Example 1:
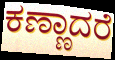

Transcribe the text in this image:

ಕಣ್ಣಾದರೆ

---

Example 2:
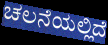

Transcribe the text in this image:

ಚಲನೆಯಲ್ಲಿದೆ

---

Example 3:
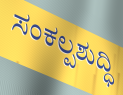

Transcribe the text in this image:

ಸಂಕಲ್ಪಶುದ್ಧಿ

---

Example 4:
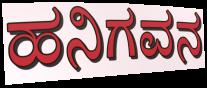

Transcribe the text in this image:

ಹನಿಗವನ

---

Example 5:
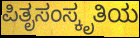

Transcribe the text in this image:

ಪಿತೃಸಂಸ್ಕೃತಿಯ